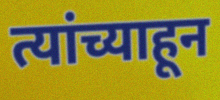
त्यांच्याहून